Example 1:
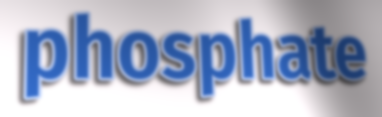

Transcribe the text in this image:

phosphate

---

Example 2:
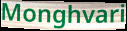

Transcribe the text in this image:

Monghvari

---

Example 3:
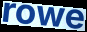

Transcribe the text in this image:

rowe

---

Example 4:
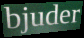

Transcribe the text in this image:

bjuder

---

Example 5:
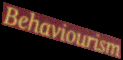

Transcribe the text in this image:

Behaviourism